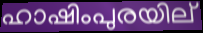
ഹാഷിംപുരയില്